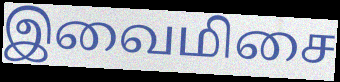
இவைமிசை